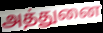
அத்துனை